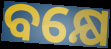
ବକ୍ଷେ